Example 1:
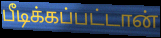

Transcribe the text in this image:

பீடிக்கப்பட்டான்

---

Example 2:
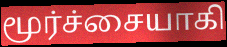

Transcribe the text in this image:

மூர்ச்சையாகி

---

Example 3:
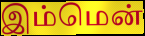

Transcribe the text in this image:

இம்மென்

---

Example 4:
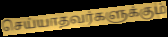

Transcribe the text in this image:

செய்யாதவர்களுக்கும்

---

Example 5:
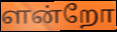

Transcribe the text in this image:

ளன்றோ